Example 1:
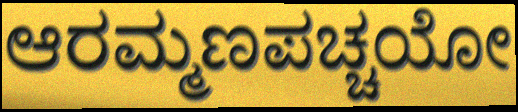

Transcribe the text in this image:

ಆರಮ್ಮಣಪಚ್ಚಯೋ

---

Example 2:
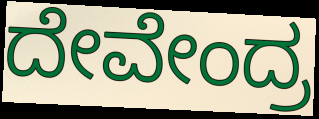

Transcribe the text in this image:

ದೇವೇಂದ್ರ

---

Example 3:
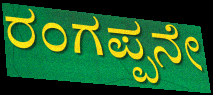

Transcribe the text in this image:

ರಂಗಪ್ಪನೇ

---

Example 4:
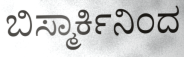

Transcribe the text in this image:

ಬಿಸ್ಮಾರ್ಕಿನಿಂದ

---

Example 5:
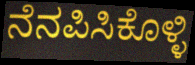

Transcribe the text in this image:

ನೆನಪಿಸಿಕೊಳ್ಳಿ